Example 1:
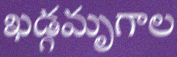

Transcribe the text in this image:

ఖడ్గమృగాల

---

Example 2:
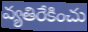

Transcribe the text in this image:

వ్యతిరేకించు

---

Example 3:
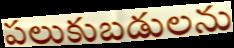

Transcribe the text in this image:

పలుకుబడులను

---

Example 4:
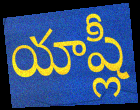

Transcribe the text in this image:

యాష్లీ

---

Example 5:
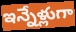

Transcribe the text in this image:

ఇన్నేళ్లుగా